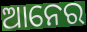
ଆନେର